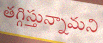
తగ్గిస్తున్నామని